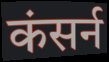
कंसर्न